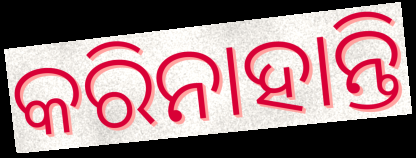
କରିନାହାନ୍ତି